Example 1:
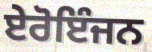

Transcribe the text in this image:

ਏਰੋਇੰਜਨ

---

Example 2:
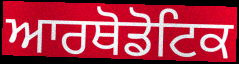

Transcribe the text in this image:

ਆਰਥੋਡੋਟਿਕ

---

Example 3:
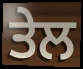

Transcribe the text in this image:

ਤੇਲ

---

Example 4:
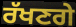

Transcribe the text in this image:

ਰੱਖਣਗੇ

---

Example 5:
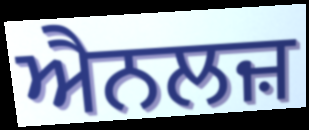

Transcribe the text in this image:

ਐਨਲਜ਼